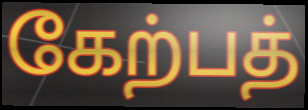
கேற்பத்